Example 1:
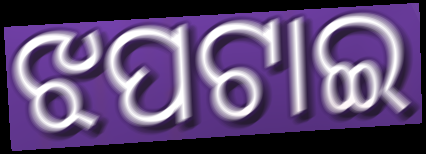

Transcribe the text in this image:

ଝପଟାଇ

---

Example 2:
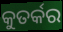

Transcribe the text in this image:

କୁତର୍କର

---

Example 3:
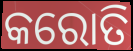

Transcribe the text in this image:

କରୋତି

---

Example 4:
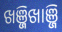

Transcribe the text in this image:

ଖଞ୍ଜିଖାଞ୍ଜି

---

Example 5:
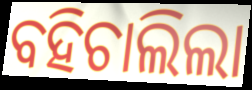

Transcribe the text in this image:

ବହିଚାଲିଲା